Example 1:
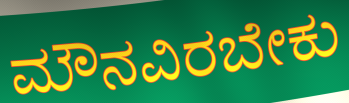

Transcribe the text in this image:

ಮೌನವಿರಬೇಕು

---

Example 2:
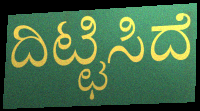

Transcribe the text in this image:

ದಿಟ್ಟಿಸಿದೆ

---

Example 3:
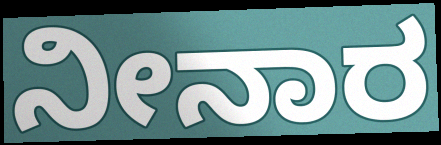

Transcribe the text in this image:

ನೀನಾರ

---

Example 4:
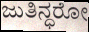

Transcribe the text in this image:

ಜುತಿನ್ಧರೋ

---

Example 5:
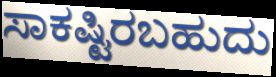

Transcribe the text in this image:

ಸಾಕಷ್ಟಿರಬಹುದು